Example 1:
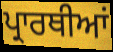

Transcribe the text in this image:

ਪ੍ਰਾਰਥੀਆਂ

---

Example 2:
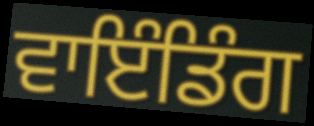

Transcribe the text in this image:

ਵਾਇੰਡਿੰਗ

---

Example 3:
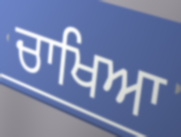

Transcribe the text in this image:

ਚਾਖਿਆ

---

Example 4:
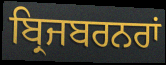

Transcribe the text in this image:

ਬ੍ਰਿਜਬਰਨਰਾਂ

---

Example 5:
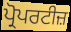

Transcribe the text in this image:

ਪ੍ਰੋਪਰਟੀਜ਼